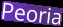
Peoria